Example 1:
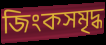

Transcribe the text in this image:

জিংকসমৃদ্ধ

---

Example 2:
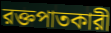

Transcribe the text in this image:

রক্তপাতকারী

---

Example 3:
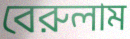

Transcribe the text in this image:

বেরুলাম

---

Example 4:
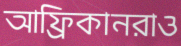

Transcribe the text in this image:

আফ্রিকানরাও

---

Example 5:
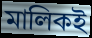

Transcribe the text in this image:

মালিকই